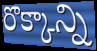
రొక్కాన్ని